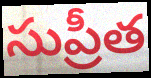
సుప్రీత